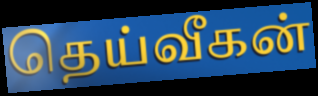
தெய்வீகன்